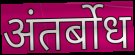
अंतर्बोध